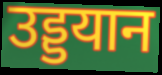
उड्डयान